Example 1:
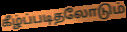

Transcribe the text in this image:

கீழ்ப்படிதலோடும்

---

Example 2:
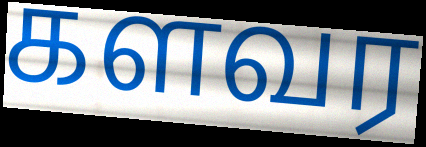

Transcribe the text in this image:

களவர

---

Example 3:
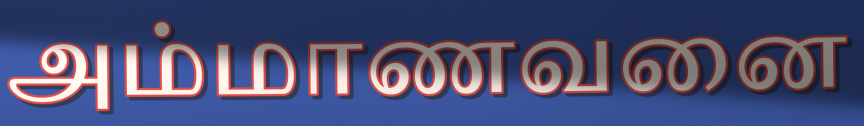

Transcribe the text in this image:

அம்மாணவனை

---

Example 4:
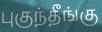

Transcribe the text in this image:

புகுந்தீங்கு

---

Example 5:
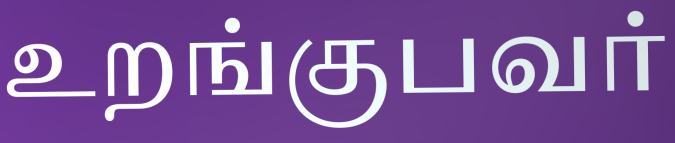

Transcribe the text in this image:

உறங்குபவர்